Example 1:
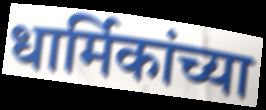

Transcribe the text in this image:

धार्मिकांच्या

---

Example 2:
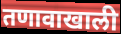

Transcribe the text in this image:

तणावाखाली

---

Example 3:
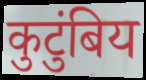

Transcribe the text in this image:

कुटुंबिय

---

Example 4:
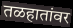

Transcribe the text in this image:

तळहातांवर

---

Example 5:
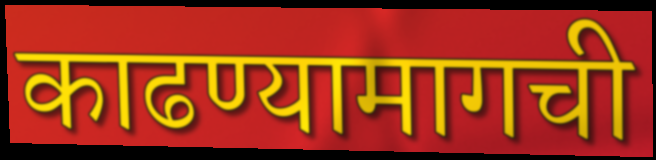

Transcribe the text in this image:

काढण्यामागची